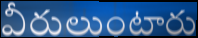
వీరులుంటారు